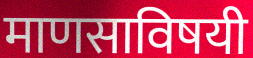
माणसाविषयी